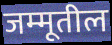
जम्मूतील